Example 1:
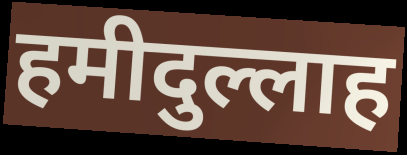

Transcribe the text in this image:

हमीदुल्लाह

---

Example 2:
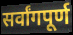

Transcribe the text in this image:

सर्वांगपूर्ण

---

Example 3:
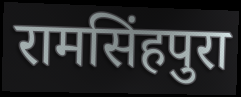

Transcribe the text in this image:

रामसिंहपुरा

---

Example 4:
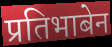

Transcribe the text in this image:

प्रतिभाबेन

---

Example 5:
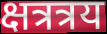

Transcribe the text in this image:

क्षत्रत्रय